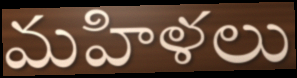
మహిళలు